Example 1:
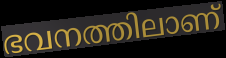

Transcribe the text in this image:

ഭവനത്തിലാണ്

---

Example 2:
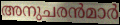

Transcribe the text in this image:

അനുചരൻമാർ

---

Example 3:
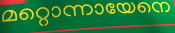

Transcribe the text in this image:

മറ്റൊന്നായേനെ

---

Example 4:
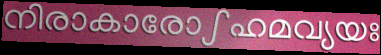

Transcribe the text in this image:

നിരാകാരോഽഹമവ്യയഃ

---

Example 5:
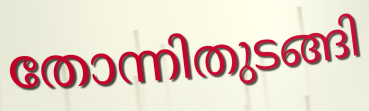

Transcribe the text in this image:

തോന്നിതുടങ്ങി